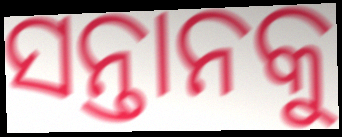
ସନ୍ତାନକୁ